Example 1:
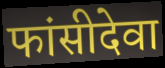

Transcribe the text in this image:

फांसीदेवा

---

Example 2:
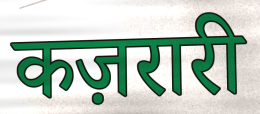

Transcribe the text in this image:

कज़रारी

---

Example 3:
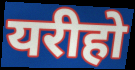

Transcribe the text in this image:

यरीहो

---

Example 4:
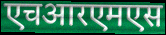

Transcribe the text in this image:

एचआरएमएस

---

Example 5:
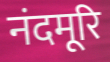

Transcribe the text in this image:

नंदमूरि